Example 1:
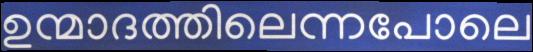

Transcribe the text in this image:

ഉന്മാദത്തിലെന്നപോലെ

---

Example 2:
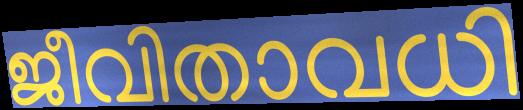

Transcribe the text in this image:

ജീവിതാവധി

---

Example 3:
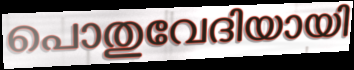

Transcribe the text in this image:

പൊതുവേദിയായി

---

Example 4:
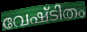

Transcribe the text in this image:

വേഷ്ടിതം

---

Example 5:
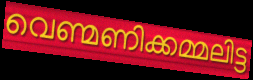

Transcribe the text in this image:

വെണ്മണിക്കമ്മലിട്ട